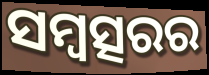
ସମ୍ବତ୍ସରର